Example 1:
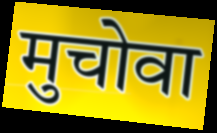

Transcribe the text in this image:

मुचोवा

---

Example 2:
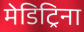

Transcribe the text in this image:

मेडिट्रिना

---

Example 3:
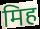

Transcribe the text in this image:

मिह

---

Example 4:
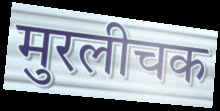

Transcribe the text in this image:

मुरलीचक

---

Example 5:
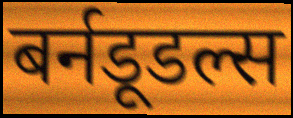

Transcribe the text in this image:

बर्नडूडल्स